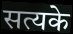
सत्यके